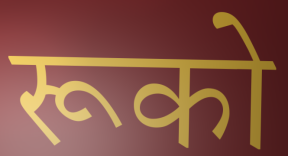
रूको